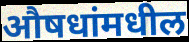
औषधांमधील